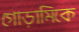
গোড়ামিকে